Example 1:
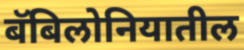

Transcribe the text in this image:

बॅबिलोनियातील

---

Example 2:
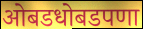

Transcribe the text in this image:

ओबडधोबडपणा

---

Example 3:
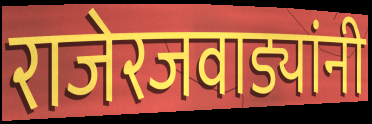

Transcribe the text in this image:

राजेरजवाड्यांनी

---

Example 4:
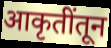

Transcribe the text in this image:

आकृतींतून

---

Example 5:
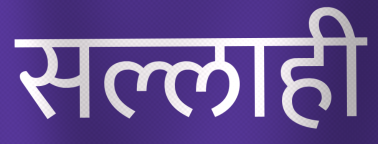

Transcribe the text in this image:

सल्लाही